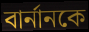
বাৰ্নানকে